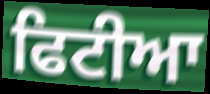
ਫਿਟੀਆ